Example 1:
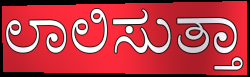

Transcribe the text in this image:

ಲಾಲಿಸುತ್ತಾ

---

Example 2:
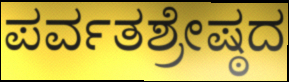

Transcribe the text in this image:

ಪರ್ವತಶ್ರೇಷ್ಠದ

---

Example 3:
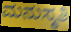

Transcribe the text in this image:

ಮನುಸ್ಮೃತಿ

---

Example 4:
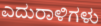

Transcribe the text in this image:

ಎದುರಾಳಿಗಳು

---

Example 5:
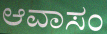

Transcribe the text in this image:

ಆವಾಸಂ